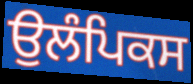
ਉਲੰਪਿਕਸ